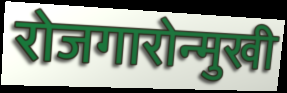
रोजगारोन्मुखी